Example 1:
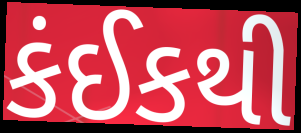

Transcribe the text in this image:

કંઈકથી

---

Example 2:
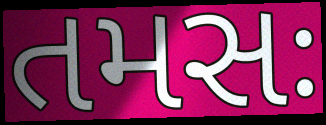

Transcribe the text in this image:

તમસઃ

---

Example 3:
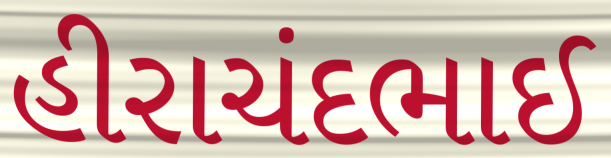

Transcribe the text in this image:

હીરાચંદભાઈ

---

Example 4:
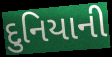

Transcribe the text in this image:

દુનિયાની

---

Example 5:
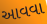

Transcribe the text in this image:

આવવા